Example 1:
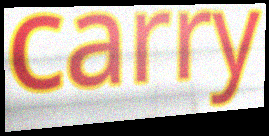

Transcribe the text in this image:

carry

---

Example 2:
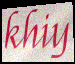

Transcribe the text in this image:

khiy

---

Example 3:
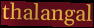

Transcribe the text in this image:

thalangal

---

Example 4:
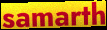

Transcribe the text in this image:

samarth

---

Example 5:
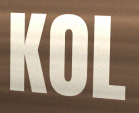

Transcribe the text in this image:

KOL